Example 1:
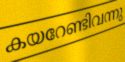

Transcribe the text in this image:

കയറേണ്ടിവന്നു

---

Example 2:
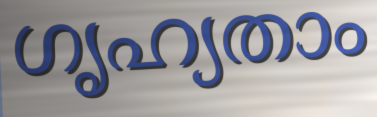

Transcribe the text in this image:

ഗൃഹ്യതാം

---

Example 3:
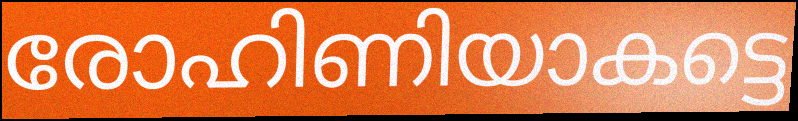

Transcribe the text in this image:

രോഹിണിയാകട്ടെ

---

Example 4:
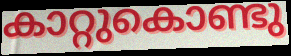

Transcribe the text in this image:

കാറ്റുകൊണ്ടു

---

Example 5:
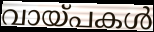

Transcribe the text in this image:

വായ്പകൾ